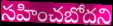
సహించబోదని